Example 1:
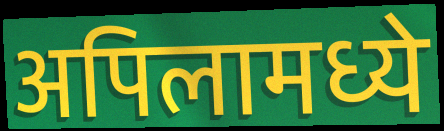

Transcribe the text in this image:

अपिलामध्ये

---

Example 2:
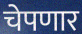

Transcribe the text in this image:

चेपणार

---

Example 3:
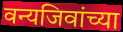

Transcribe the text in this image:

वन्यजिवांच्या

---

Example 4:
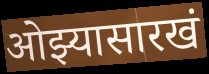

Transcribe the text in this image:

ओझ्यासारखं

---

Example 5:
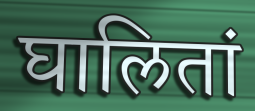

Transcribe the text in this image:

घालितां